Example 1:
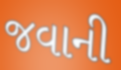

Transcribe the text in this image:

જવાની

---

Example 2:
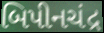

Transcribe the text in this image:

બિપીનચંદ્ર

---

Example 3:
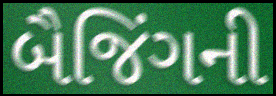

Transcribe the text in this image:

બૈજિંગની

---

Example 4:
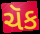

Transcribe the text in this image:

ચૅક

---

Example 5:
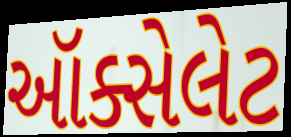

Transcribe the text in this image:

ઑક્સેલેટ